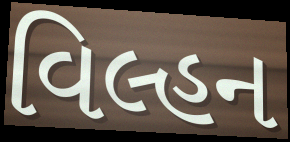
વિલ્હન